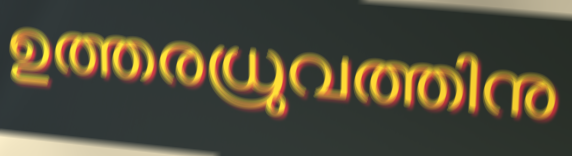
ഉത്തരധ്രുവത്തിനു